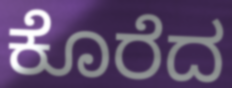
ಕೊರೆದ